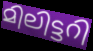
മിലിട്ടറി